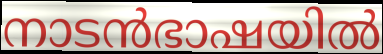
നാടൻഭാഷയിൽ